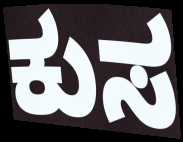
ಕುಸ